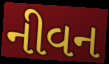
નીવન